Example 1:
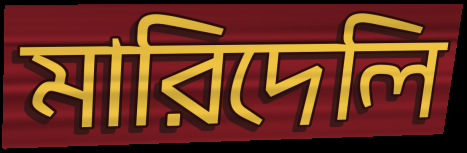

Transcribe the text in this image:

মারিদেলি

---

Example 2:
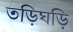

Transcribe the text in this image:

তড়িঘড়ি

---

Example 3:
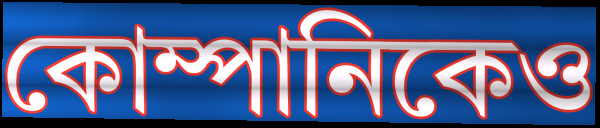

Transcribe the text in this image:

কোম্পানিকেও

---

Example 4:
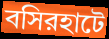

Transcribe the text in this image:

বসিরহাটে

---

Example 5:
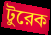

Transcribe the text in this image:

টুরেক